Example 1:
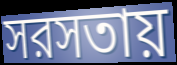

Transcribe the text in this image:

সরসতায়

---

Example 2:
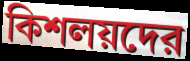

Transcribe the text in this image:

কিশলয়দের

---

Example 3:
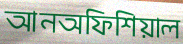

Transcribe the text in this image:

আনঅফিশিয়াল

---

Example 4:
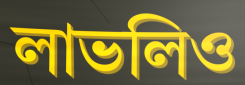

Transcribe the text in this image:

লাভলিও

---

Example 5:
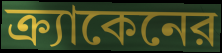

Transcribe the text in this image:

ক্র্যাকেনের